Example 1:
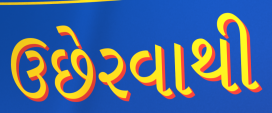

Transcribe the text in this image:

ઉછેરવાથી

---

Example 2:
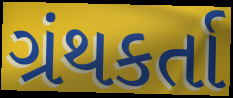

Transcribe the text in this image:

ગ્રંથકર્તા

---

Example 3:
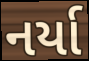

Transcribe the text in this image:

નર્યા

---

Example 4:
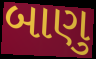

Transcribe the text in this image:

બાણુ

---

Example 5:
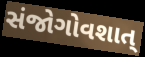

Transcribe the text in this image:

સંજોગોવશાત્